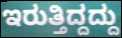
ಇರುತ್ತಿದ್ದದ್ದು